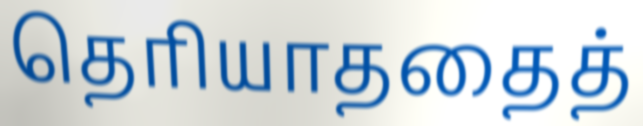
தெரியாததைத்